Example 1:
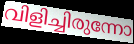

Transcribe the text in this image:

വിളിച്ചിരുന്നോ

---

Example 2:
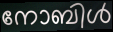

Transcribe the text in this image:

നോബിൾ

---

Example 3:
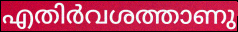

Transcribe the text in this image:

എതിർവശത്താണു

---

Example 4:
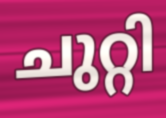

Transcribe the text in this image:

ചുറ്റി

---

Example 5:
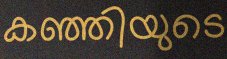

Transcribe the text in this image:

കഞ്ഞിയുടെ